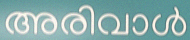
അരിവാൾ